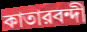
কাতারবন্দী